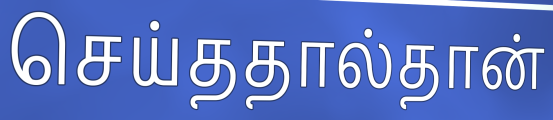
செய்ததால்தான்